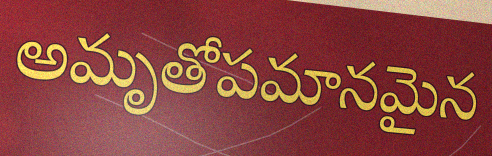
అమృతోపమానమైన